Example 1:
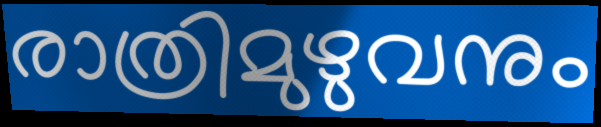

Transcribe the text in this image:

രാത്രിമുഴുവനും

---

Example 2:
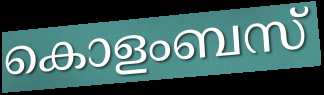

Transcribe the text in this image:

കൊളംബസ്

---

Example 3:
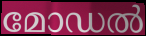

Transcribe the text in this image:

മോഡൽ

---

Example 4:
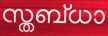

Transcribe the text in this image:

സ്തബ്ധാ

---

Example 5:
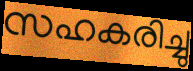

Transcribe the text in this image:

സഹകരിച്ചു